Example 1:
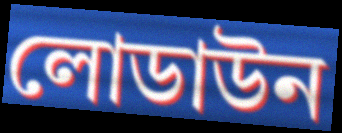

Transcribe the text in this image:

লোডাউন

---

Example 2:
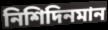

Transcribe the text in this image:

নিশিদিনমান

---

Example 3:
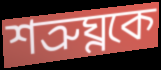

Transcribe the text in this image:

শত্রুঘ্নকে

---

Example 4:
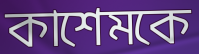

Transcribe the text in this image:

কাশেমকে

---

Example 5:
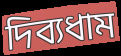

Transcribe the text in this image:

দিব্যধাম